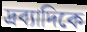
দ্রব্যাদিকে